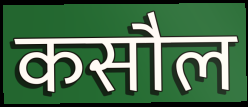
कसौल